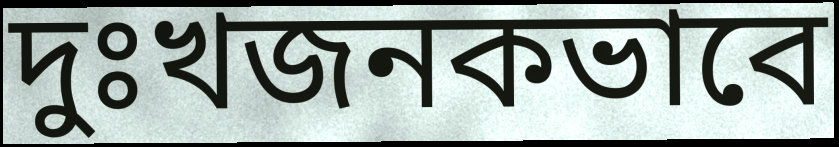
দুঃখজনকভাবে